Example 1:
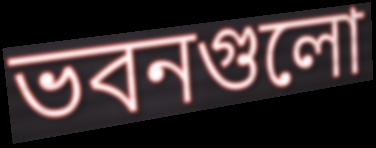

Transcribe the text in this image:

ভবনগুলো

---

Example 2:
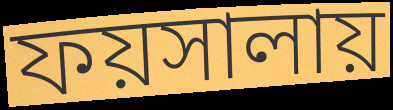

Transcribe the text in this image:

ফয়সালায়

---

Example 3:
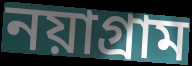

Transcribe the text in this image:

নয়াগ্রাম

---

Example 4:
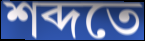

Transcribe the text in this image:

শব্দতে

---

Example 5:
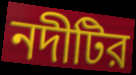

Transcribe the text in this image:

নদীটির